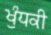
ਖੁੰਧਕੀ